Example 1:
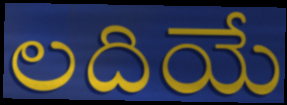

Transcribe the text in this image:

లదియే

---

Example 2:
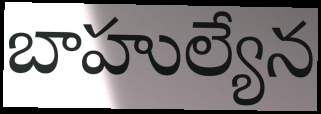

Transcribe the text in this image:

బాహుల్యేన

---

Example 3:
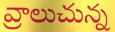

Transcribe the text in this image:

వ్రాలుచున్న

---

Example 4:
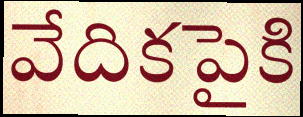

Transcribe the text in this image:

వేదికపైకి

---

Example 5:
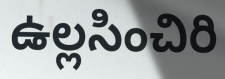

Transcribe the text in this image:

ఉల్లసించిరి